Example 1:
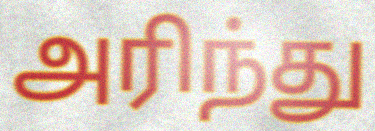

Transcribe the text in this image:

அரிந்து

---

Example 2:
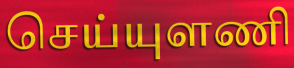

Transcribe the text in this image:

செய்யுளணி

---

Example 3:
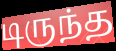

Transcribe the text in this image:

டிருந்த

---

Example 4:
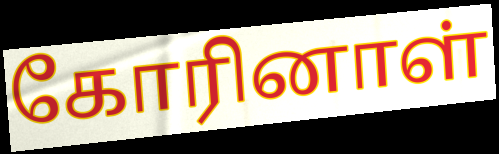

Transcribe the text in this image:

கோரினாள்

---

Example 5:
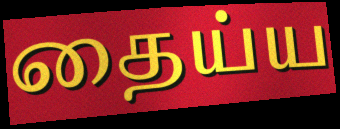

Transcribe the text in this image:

தைய்ய